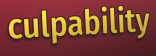
culpability